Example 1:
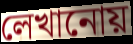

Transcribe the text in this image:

লেখানোয়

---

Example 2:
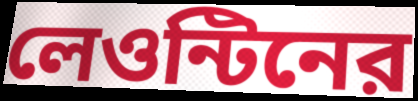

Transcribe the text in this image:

লেওন্টিনের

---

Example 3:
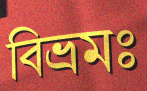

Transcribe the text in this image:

বিভ্রমঃ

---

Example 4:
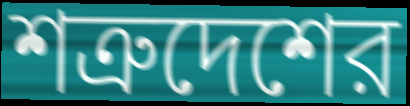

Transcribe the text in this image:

শত্রুদেশের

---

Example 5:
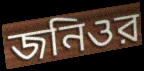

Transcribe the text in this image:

জনিওর